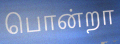
பொன்றா